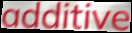
additive